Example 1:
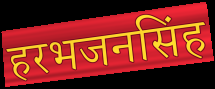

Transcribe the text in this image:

हरभजनसिंह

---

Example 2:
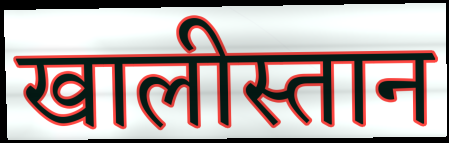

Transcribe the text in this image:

खालीस्तान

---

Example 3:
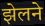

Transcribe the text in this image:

झेलने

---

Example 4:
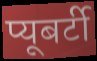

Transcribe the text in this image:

प्यूबर्टी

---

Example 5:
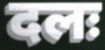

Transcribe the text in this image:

दलः